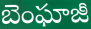
బెంఘాజీ